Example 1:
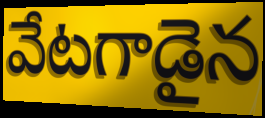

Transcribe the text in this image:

వేటగాడైన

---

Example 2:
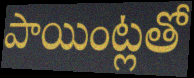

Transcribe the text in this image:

పాయింట్లతో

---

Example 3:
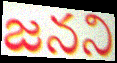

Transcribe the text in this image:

జనని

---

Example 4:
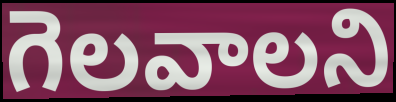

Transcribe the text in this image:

గెలవాలని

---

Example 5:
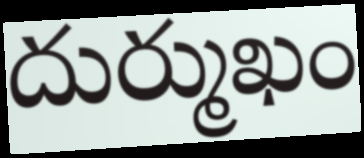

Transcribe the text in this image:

దుర్ముఖం